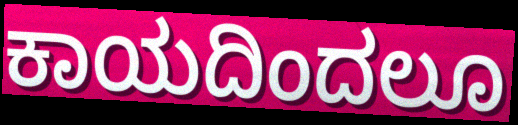
ಕಾಯದಿಂದಲೂ